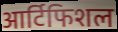
आर्टिफिशल